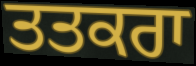
ਤਤਕਰਾ